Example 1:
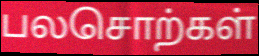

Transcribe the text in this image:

பலசொற்கள்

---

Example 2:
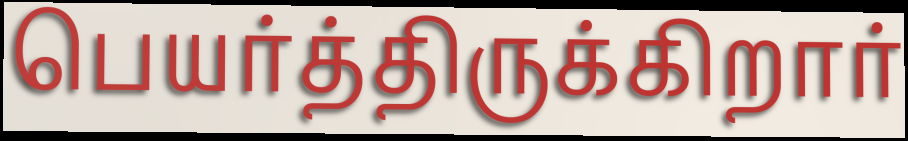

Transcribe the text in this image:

பெயர்த்திருக்கிறார்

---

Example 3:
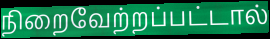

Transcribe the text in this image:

நிறைவேற்றப்பட்டால்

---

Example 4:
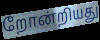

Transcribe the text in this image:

றோன்றியது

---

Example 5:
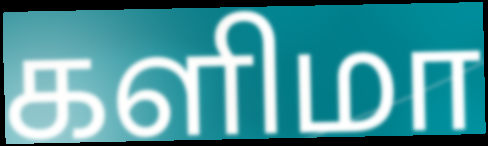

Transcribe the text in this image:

களிமா